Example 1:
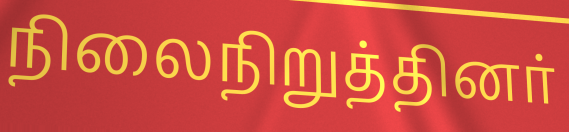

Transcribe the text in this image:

நிலைநிறுத்தினர்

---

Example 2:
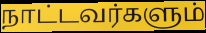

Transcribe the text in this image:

நாட்டவர்களும்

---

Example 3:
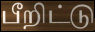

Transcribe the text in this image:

பீறிட்டு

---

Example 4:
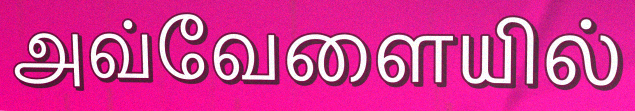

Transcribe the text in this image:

அவ்வேளையில்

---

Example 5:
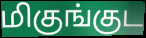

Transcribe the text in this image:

மிகுங்குட